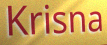
Krisna